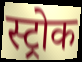
स्ट्रोक